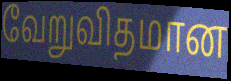
வேறுவிதமான